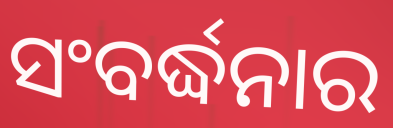
ସଂବର୍ଦ୍ଧନାର